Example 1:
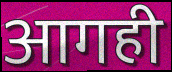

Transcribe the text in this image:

आगही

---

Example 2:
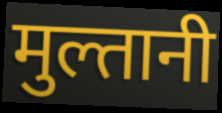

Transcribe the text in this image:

मुल्‍तानी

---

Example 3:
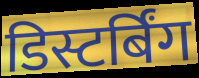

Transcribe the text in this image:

डिस्टर्बिंग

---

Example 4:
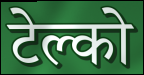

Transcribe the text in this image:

टेल्को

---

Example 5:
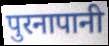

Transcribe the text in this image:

पुरनापानी